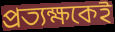
প্রত্যক্ষকেই